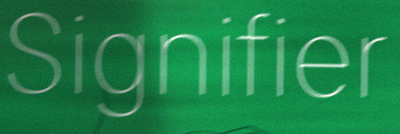
Signifier